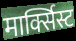
मार्क्सिस्ट